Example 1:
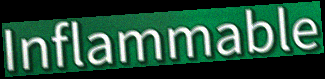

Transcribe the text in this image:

Inflammable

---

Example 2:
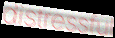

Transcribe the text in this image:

distressful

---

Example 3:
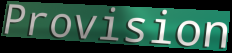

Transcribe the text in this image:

Provision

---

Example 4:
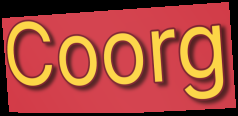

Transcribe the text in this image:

Coorg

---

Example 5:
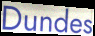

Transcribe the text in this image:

Dundes